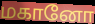
மகானோ